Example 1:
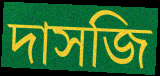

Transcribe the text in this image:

দাসজি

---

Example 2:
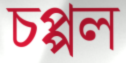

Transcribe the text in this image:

চপ্পল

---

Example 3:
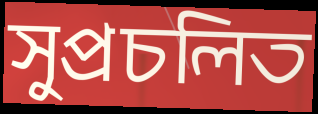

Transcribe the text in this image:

সুপ্রচলিত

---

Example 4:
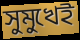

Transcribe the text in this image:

সুমুখেই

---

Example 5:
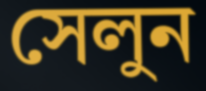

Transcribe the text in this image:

সেলুন